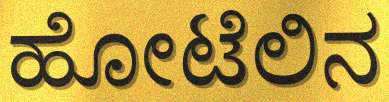
ಹೋಟೆಲಿನ